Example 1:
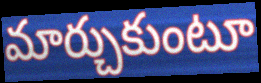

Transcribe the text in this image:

మార్చుకుంటూ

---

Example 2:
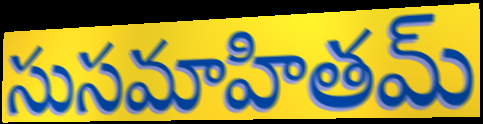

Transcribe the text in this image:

సుసమాహితమ్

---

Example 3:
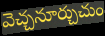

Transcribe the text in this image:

వెచ్చనూర్చుచుం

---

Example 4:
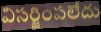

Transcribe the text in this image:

విసర్జింపలేదు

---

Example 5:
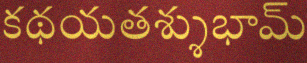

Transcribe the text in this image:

కథయతశ్శుభామ్